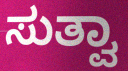
ಸುತ್ವಾ